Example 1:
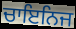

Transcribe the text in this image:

ਚਾਇਨਿਜ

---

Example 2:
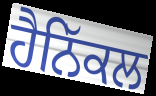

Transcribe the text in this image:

ਹੈਨਿੱਕਲ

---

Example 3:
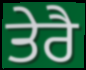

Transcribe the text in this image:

ਤੇਰੈ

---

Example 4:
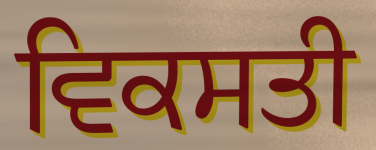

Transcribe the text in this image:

ਵਿਕਸਤੀ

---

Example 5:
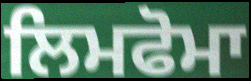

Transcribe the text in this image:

ਲਿਮਫੋਮਾ